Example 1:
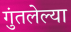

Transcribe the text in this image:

गुंतलेल्या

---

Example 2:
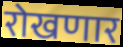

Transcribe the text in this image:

रोखणार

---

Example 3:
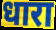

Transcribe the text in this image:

धारा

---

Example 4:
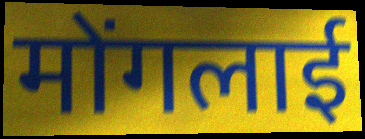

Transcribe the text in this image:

मोंगलाई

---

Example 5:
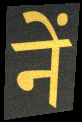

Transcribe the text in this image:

नें